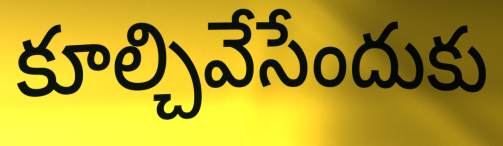
కూల్చివేసేందుకు